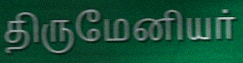
திருமேனியர்